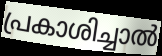
പ്രകാശിച്ചാൽ